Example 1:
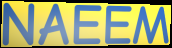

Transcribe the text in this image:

NAEEM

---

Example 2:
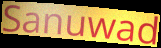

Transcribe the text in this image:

Sanuwad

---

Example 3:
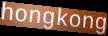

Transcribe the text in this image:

hongkong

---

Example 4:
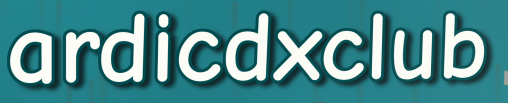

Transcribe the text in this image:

ardicdxclub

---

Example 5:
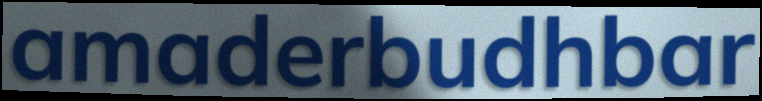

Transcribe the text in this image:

amaderbudhbar